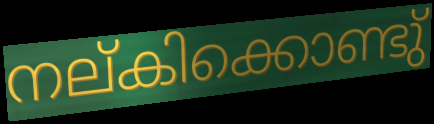
നല്കിക്കൊണ്ടു്